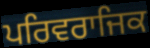
ਪਰਿਵਰਾਜਿਕ